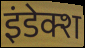
इंडेक्श